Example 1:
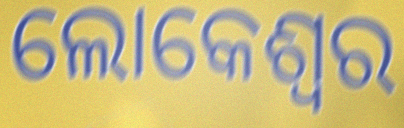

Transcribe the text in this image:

ଲୋକେଶ୍ୱର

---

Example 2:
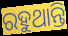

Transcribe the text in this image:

ରହୁଥାନ୍ତି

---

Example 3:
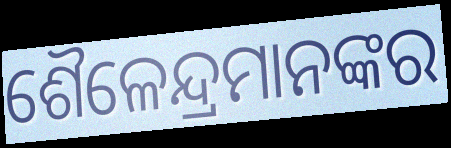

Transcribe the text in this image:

ଶୈଳେନ୍ଦ୍ରମାନଙ୍କର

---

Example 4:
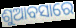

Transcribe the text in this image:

ଶୁଆବସାରେ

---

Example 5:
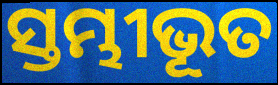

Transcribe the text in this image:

ସ୍ତମ୍ଭୀଭୂତ